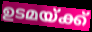
ഉടമയ്ക്ക്